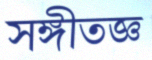
সঙ্গীতজ্ঞ